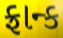
ફ્રાન્ક